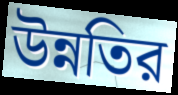
উন্নতির